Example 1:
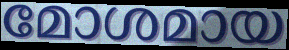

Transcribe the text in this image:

മോശമായ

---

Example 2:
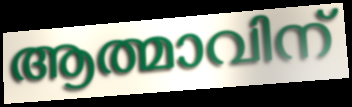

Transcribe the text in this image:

ആത്മാവിന്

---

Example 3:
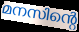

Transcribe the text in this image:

മനസിന്റെ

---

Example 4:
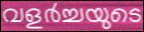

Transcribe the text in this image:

വളർച്ചയുടെ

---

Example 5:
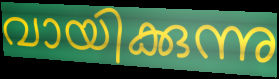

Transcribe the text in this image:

വായിക്കുന്നു